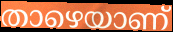
താഴെയാണ്